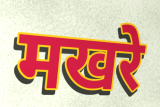
मखरे